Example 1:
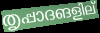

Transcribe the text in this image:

തൃപ്പാദങളില്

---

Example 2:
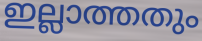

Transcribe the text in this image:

ഇല്ലാത്തതും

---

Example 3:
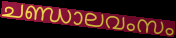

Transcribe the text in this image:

ചണ്ഡാലവംസം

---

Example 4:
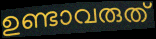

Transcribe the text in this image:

ഉണ്ടാവരുത്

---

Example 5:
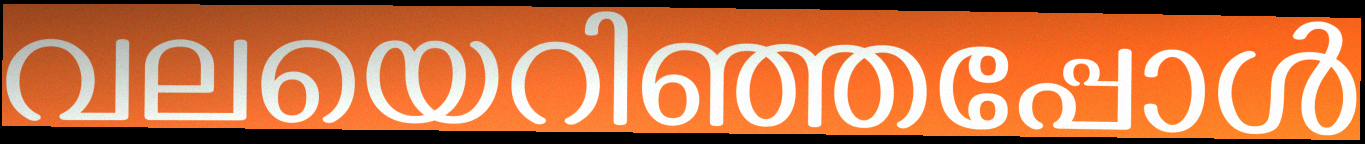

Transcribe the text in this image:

വലയെറിഞ്ഞപ്പോൾ